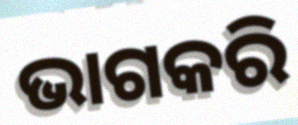
ଭାଗକରି